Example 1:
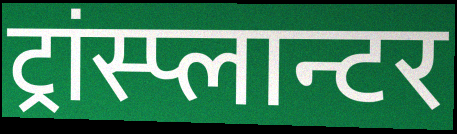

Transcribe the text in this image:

ट्रांस्प्लान्टर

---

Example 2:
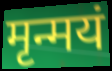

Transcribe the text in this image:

मृन्मयं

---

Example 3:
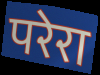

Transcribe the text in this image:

परेरा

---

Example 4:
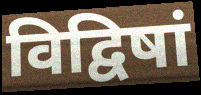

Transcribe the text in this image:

विद्विषां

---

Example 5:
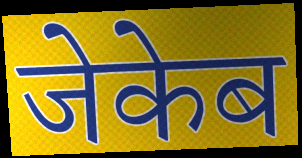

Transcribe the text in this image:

जेकेब